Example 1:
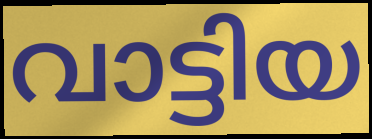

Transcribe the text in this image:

വാട്ടിയ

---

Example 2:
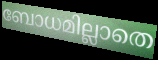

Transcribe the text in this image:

ബോധമില്ലാതെ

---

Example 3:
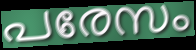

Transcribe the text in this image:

പരേസം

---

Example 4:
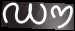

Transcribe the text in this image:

ഡൗ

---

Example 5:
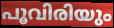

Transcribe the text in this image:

പൂവിരിയും